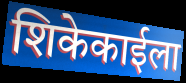
शिकेकाईला